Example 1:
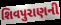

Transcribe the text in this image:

શિવપુરાણની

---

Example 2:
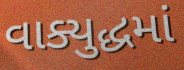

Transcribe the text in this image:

વાક્યુદ્ધમાં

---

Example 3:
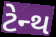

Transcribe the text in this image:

ટેન્થ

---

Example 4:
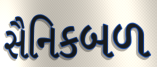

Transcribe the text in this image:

સૈનિકબળ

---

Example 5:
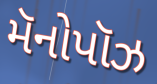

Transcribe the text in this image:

મૅનોપૉઝ